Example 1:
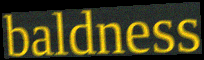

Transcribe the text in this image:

baldness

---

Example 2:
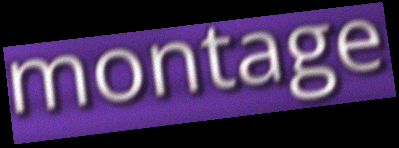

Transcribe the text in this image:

montage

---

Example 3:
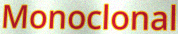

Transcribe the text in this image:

Monoclonal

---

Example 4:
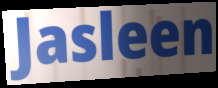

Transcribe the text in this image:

Jasleen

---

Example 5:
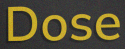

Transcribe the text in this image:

Dose